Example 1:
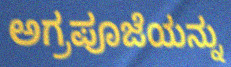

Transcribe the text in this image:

ಅಗ್ರಪೂಜೆಯನ್ನು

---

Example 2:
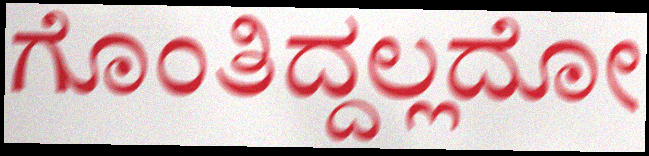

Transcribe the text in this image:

ಗೊಂತಿದ್ದಲ್ಲದೋ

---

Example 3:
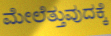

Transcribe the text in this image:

ಮೇಲೆತ್ತುವುದಕ್ಕೆ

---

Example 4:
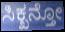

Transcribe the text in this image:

ಸಿಕ್ಖನ್ತೋ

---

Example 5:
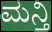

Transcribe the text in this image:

ಮನ್ತಿ